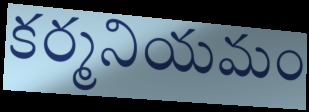
కర్మనియమం